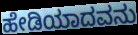
ಹೇಡಿಯಾದವನು